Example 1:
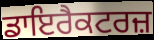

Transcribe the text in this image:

ਡਾਇਰੈਕਟਰਜ਼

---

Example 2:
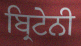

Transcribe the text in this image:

ਬ੍ਰਿਟੇਨੀ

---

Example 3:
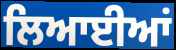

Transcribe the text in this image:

ਲਿਆਈਆਂ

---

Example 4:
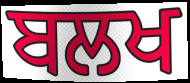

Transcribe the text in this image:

ਬਲਖ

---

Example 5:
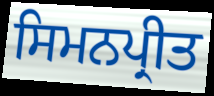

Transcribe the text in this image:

ਸਿਮਨਪ੍ਰੀਤ